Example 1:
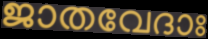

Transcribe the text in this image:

ജാതവേദാഃ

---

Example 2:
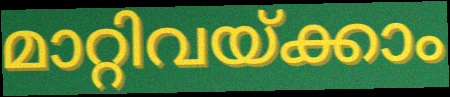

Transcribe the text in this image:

മാറ്റിവയ്ക്കാം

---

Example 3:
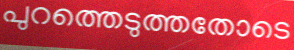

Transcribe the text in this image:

പുറത്തെടുത്തതോടെ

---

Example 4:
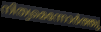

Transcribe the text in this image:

നിത്യമെന്നോർത്തു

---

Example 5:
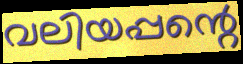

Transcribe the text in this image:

വലിയപ്പന്റെ